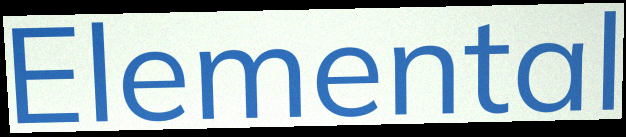
Elemental